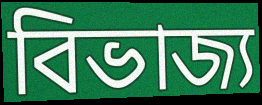
বিভাজ্য